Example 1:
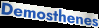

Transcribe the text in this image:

Demosthenes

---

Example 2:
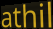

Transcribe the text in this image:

athil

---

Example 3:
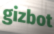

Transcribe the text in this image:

gizbot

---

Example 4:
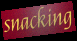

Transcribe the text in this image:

snacking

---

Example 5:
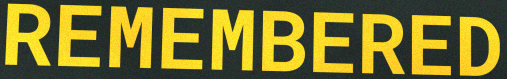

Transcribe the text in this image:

REMEMBERED